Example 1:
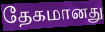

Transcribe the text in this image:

தேகமானது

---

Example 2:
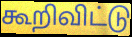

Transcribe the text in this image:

கூறிவிட்டு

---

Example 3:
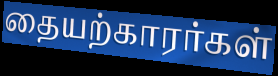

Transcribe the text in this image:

தையற்காரர்கள்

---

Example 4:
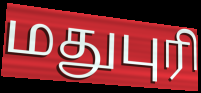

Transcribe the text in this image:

மதுபுரி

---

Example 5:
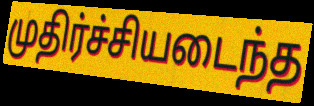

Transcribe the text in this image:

முதிர்ச்சியடைந்த